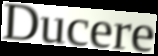
Ducere